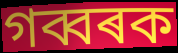
গব্বৰক